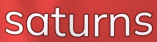
saturns